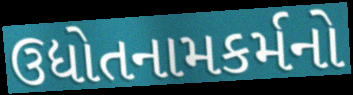
ઉદ્યોતનામકર્મનો